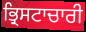
ਭ੍ਰਿਸਟਾਚਾਰੀ